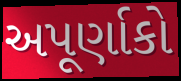
અપૂર્ણાકો